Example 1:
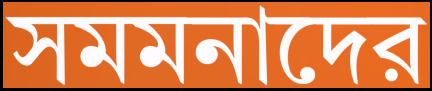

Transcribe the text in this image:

সমমনাদের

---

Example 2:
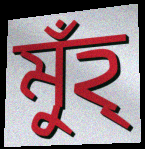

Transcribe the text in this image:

মুঁহ্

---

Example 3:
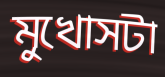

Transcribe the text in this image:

মুখোসটা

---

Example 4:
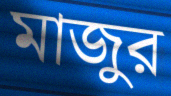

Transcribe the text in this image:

মাজুর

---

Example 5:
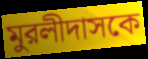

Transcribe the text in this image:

মুরলীদাসকে